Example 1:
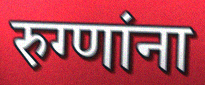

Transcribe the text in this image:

रुग्णांना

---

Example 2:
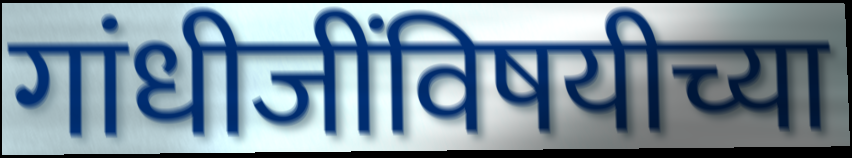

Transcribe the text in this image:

गांधीजींविषयीच्या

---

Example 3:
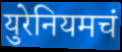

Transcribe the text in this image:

युरेनियमचं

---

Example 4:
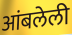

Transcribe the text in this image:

आंबलेली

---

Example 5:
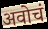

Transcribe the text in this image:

अवोचं